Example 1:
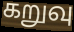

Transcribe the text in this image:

கறுவு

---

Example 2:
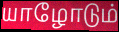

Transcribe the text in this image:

யாழோடும்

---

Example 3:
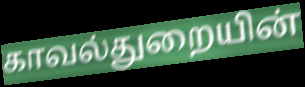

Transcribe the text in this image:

காவல்துறையின்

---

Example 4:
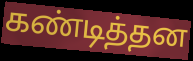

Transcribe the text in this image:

கண்டித்தன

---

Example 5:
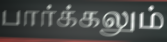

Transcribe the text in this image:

பார்க்கலும்